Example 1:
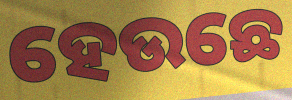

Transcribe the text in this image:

ହେଉଛେ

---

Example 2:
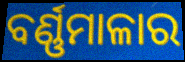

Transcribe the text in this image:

ବର୍ଣ୍ଣମାଳାର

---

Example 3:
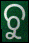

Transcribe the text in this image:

ଚୁ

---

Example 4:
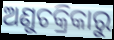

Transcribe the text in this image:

ଅଣୁଚକ୍ରିକାରୁ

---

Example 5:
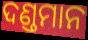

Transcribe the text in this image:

ଦଣ୍ଡମାନ